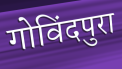
गोविंदपुरा